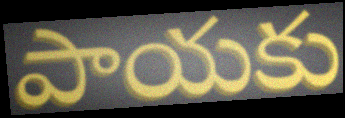
పాయకు